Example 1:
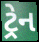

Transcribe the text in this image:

ટ્રેન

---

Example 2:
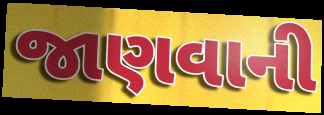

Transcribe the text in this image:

જાણવાની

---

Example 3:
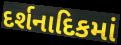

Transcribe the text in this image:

દર્શનાદિકમાં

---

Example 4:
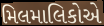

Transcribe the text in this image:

મિલમાલિકોએ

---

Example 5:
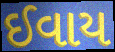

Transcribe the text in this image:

ઈવાય